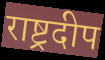
राष्ट्रदीप